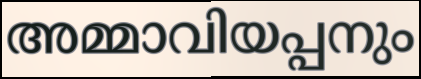
അമ്മാവിയപ്പനും